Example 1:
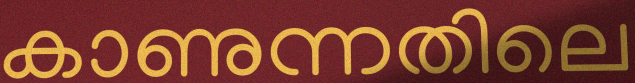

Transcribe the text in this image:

കാണുന്നതിലെ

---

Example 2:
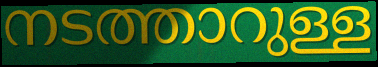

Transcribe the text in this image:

നടത്താറുള്ള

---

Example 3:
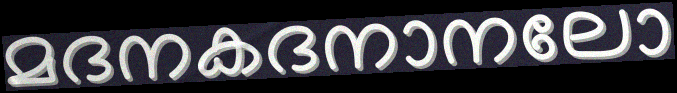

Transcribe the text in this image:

മദനകദനാനലോ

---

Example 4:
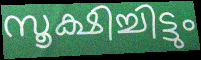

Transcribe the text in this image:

സൂക്ഷിച്ചിട്ടും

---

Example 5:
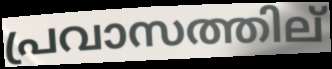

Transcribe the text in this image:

പ്രവാസത്തില്